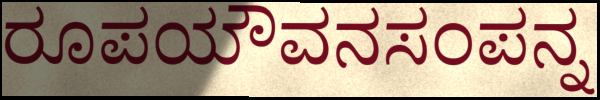
ರೂಪಯೌವನಸಂಪನ್ನ